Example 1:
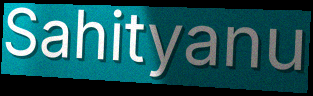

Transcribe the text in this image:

Sahityanu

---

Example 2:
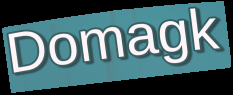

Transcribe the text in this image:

Domagk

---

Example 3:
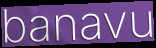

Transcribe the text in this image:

banavu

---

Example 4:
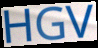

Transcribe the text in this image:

HGV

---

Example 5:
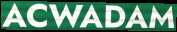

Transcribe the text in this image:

ACWADAM